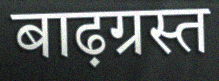
बाढ़ग्रस्त